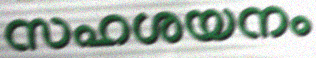
സഹശയനം